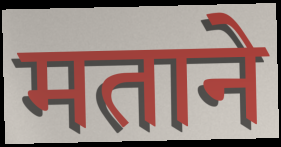
मताने